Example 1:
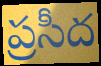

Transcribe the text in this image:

ప్రసీద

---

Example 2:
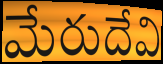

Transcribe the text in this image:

మేరుదేవి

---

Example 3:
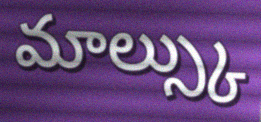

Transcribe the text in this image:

మాల్స్కు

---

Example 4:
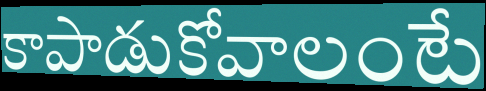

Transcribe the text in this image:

కాపాడుకోవాలంటే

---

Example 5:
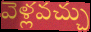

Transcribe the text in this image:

వెళ్లవచ్చు